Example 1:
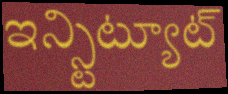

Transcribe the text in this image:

ఇన్స్టిట్యూట్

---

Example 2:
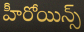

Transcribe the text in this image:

హీరోయిన్స్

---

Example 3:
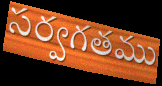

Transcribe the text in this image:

సర్వగతము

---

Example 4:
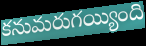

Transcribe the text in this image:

కనుమరుగయ్యింది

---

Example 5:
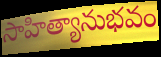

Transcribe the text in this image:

సాహిత్యానుభవం